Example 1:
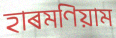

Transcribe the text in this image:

হাৰমণিয়াম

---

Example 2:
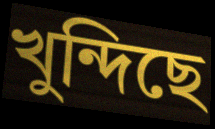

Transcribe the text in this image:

খুন্দিছে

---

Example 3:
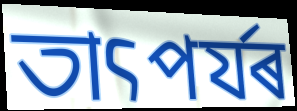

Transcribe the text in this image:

তাৎপৰ্যৰ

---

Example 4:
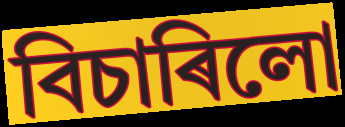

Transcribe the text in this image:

বিচাৰিলো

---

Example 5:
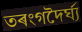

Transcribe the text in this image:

তৰংগদৈৰ্ঘ্য